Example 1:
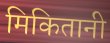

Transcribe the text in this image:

मिकितानी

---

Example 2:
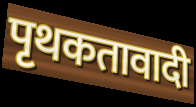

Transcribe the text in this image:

पृथकतावादी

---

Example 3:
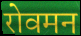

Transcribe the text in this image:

रोवमन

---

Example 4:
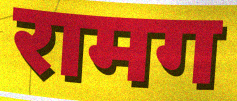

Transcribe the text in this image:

रामग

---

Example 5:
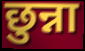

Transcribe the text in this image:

छुन्ना